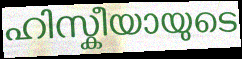
ഹിസ്കീയായുടെ